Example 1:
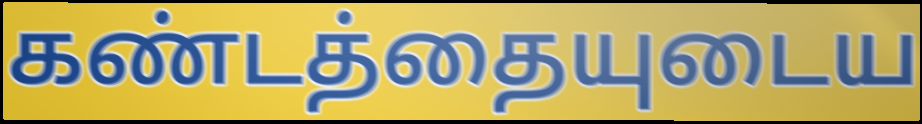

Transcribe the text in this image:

கண்டத்தையுடைய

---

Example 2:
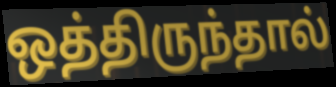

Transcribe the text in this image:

ஒத்திருந்தால்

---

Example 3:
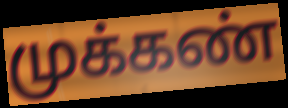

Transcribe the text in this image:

முக்கண்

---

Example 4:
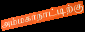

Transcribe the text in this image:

அம்மகாநாட்டிற்கு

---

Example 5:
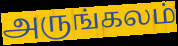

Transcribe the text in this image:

அருங்கலம்